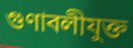
গুণাবলীযুক্ত